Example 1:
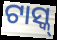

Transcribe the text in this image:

ଟାସ୍କ୍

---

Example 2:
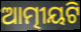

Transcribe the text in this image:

ଆତ୍ମୀୟଟି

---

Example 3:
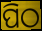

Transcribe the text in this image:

ପିଠ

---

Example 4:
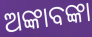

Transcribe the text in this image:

ଅଙ୍କାବଙ୍କା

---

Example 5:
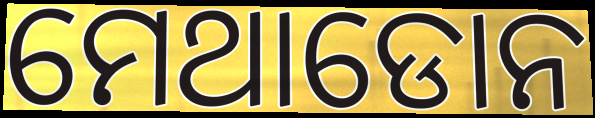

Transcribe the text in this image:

ମେଥାଡୋନ